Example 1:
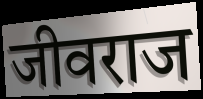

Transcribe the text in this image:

जीवराज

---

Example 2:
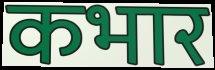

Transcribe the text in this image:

कभार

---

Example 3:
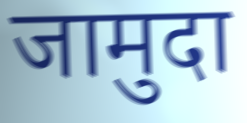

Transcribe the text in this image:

जामुदा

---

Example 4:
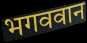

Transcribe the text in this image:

भगववान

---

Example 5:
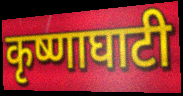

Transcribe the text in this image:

कृष्णाघाटी